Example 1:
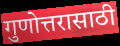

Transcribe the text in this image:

गुणोत्तरासाठी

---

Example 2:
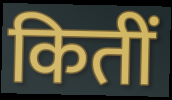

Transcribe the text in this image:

कितीं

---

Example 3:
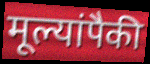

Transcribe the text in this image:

मूल्यांपैकी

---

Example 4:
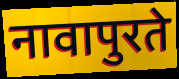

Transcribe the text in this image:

नावापुरते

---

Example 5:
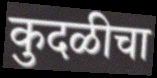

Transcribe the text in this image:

कुदळीचा